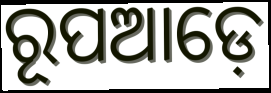
ରୂପଆଡ଼େ